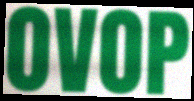
OVOP